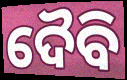
ଦୈବି